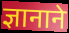
ज्ञानाने